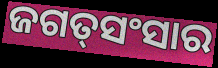
ଜଗତ୍‌ସଂସାର